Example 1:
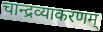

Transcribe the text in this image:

चान्द्रव्याकरणम्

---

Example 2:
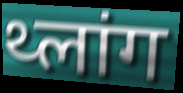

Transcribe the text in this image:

थ्लांग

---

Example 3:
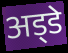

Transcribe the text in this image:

अड्‍डे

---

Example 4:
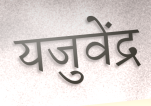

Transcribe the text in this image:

यजुवेंद्र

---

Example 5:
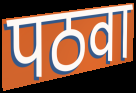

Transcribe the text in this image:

पठवा